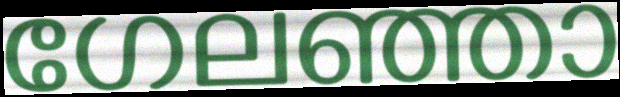
ഗേലഞ്ഞാ